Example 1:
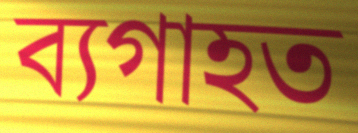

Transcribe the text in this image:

ব্যগাহত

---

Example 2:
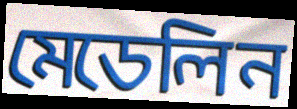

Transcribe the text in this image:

মেডেলিন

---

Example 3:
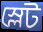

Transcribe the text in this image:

স্লেট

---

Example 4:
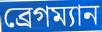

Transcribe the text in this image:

ব্রেগম্যান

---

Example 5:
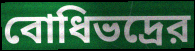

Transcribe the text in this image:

বোধিভদ্রের